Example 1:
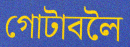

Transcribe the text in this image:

গোটাবলৈ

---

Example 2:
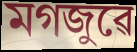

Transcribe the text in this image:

মগজুৱে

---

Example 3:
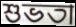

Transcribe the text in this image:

শুভতা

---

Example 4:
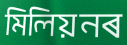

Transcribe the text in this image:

মিলিয়নৰ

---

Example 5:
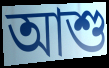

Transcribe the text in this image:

আশু